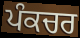
ਪੰਕਚਰ